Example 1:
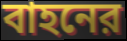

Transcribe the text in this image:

বাহনের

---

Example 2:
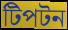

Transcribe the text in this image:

টিপটন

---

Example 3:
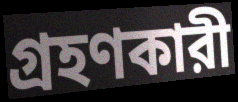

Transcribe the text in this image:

গ্রহণকারী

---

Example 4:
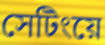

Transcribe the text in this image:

সেটিংয়ে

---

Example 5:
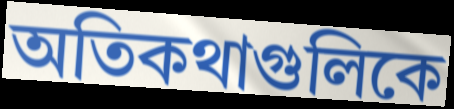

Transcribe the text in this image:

অতিকথাগুলিকে